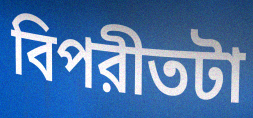
বিপরীতটা